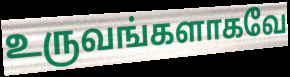
உருவங்களாகவே